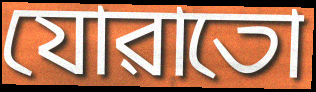
যোৱাতো